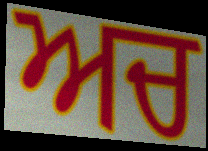
ਅਚ